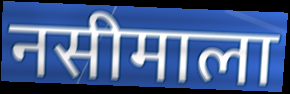
नसीमाला